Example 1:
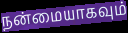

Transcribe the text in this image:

நன்மையாகவும்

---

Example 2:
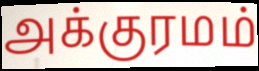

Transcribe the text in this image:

அக்குரமம்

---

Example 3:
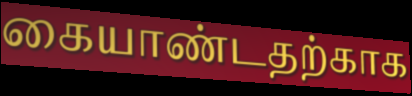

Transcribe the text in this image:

கையாண்டதற்காக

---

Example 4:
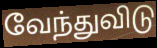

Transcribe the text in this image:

வேந்துவிடு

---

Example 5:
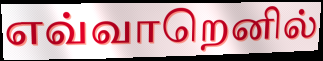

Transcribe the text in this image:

எவ்வாறெனில்